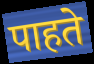
पाहते